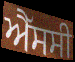
ਐੱਸਸੀ